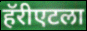
हॅरीएटला